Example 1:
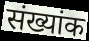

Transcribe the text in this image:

संख्यांक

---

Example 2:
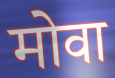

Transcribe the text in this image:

मोवा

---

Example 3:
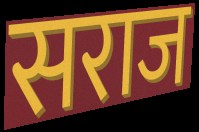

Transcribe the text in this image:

सराज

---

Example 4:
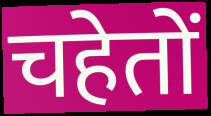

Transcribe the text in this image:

चहेतों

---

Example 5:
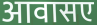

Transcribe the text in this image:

आवासए